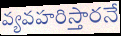
వ్యవహరిస్తారనే